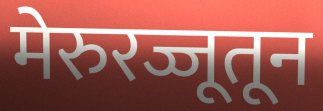
मेरुरज्जूतून